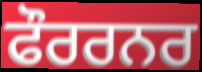
ਫੌਰਰਨਰ